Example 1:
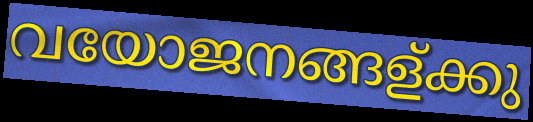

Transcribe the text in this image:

വയോജനങ്ങള്ക്കു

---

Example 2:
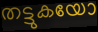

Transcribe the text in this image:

തട്ടുകയോ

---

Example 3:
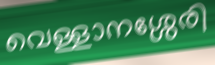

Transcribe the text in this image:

വെള്ളാനശ്ശേരി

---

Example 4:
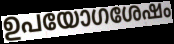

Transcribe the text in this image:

ഉപയോഗശേഷം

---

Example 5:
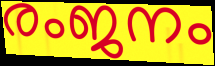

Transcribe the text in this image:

രംജനം